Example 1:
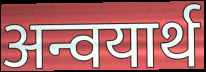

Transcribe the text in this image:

अन्वयार्थ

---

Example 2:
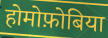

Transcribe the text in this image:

होमोफ़ोबिया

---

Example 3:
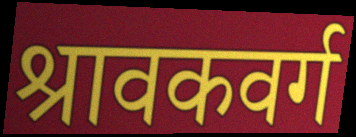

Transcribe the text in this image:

श्रावकवर्ग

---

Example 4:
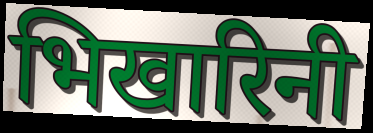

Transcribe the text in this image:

भिखारिनी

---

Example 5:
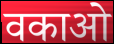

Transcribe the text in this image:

वकाओ